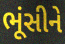
ભૂંસીને